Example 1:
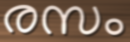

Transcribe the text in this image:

രസം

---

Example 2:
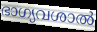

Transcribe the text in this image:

ഭാഗ്യവശാൽ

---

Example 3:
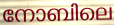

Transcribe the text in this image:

നോബിലെ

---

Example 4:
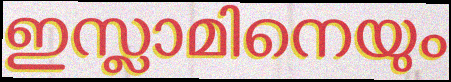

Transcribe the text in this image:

ഇസ്ലാമിനെയും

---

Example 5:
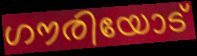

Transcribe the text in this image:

ഗൗരിയോട്